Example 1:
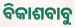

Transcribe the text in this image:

ବିକାଶବାବୁ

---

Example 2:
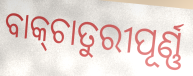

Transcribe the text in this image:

ବାକ୍‌ଚାତୁରୀପୂର୍ଣ୍ଣ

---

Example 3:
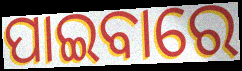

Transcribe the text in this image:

ପାଇବାରେ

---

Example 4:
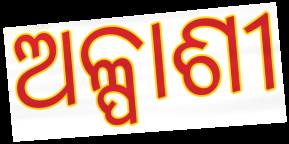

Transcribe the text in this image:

ଅଳ୍ପାଶୀ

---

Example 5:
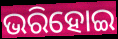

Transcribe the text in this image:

ଭରିହୋଇ